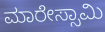
ಮಾರೇಸ್ಸಾಮಿ